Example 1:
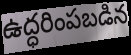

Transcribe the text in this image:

ఉద్ధరింపబడిన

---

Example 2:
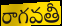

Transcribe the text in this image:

రాగవతీ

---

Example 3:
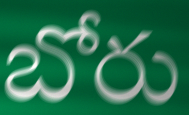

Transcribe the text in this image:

బోరు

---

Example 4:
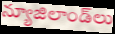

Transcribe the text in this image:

న్యూజిలాండ్‌లు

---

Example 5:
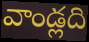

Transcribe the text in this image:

వాండ్లది